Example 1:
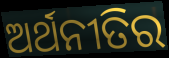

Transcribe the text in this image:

ଅର୍ଥନୀତିର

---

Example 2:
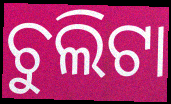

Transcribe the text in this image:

ଚୁଲିଟା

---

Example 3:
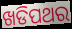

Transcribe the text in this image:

ଖଡିପଥର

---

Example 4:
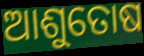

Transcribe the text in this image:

ଆଶୁତୋଷ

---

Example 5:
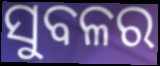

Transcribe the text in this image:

ସୁବଳର